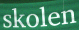
skolen